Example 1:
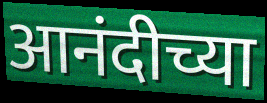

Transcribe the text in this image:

आनंदीच्या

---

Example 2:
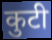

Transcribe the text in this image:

कुटी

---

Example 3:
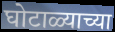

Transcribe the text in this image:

घोटाळ्याच्या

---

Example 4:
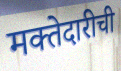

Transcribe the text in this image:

मक्तेदारीची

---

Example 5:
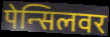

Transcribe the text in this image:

पेन्सिलवर